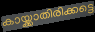
കായ്ക്കാതിരിക്കട്ടെ